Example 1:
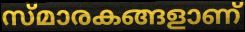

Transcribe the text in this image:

സ്മാരകങ്ങളാണ്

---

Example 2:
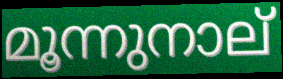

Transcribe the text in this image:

മൂന്നുനാല്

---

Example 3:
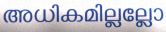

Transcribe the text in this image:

അധികമില്ലല്ലോ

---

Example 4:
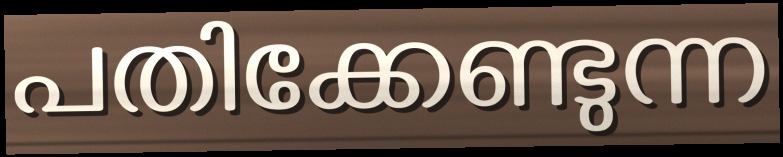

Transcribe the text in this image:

പതിക്കേണ്ടുന്ന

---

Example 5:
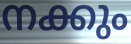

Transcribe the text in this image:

നക്കും